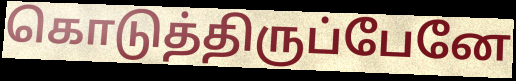
கொடுத்திருப்பேனே